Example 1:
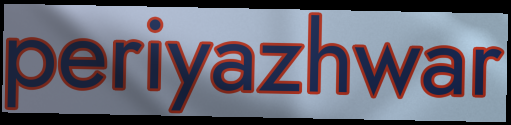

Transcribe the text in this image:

periyazhwar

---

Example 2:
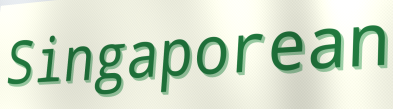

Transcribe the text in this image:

Singaporean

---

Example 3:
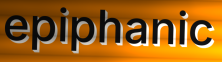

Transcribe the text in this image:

epiphanic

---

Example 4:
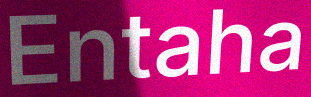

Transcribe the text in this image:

Entaha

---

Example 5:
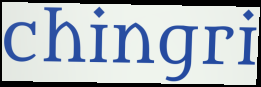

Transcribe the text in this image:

chingri